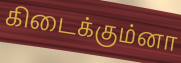
கிடைக்கும்னா